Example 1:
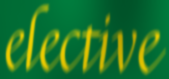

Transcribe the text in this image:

elective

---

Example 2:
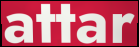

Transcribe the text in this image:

attar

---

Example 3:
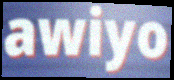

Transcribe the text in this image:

awiyo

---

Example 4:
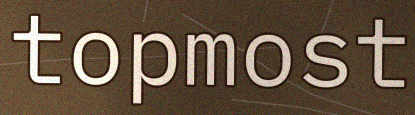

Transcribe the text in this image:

topmost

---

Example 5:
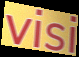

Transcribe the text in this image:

visi